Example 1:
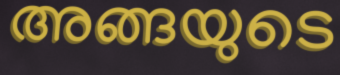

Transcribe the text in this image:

അങ്ങയുടെ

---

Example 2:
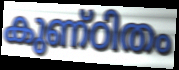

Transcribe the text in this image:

കുണ്ഠിതം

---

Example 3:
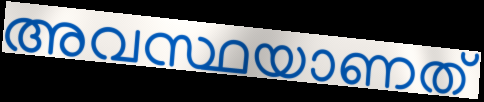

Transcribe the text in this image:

അവസ്ഥയാണത്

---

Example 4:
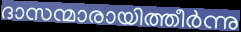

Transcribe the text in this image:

ദാസന്മാരായിത്തീർന്നു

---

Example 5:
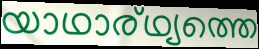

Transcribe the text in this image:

യാഥാര്ഥ്യത്തെ